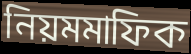
নিয়মমাফিক